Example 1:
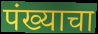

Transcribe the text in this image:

पंख्याचा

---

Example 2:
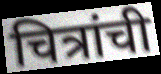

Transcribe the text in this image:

चित्रांची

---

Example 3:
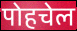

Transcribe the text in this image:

पोहचेल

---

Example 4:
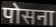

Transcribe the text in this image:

पोसना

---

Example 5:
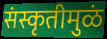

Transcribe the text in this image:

संस्कृतीमुळं